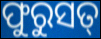
ଫୁରୁସତ୍